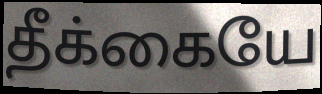
தீக்கையே